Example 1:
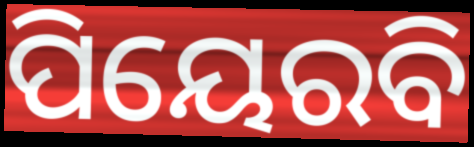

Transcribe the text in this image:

ପିୟେରବି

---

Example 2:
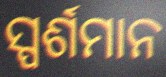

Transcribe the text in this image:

ସ୍ପର୍ଶମାନ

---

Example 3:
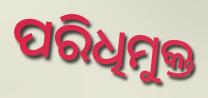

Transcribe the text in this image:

ପରିଧିମୁକ୍ତ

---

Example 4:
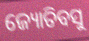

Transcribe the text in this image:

ଜ୍ୟୋତିବସୁ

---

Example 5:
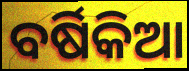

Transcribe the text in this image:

ବର୍ଷିକିଆ